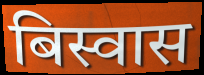
बिस्वास